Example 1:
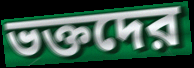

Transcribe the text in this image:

ভক্তদের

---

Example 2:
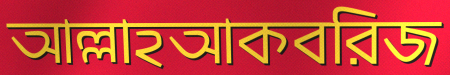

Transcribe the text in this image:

আল্লাহআকবরিজ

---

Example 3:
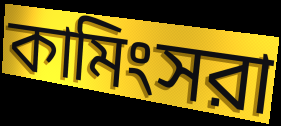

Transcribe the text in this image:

কামিংসরা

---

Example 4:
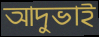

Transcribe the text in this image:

আদুভাই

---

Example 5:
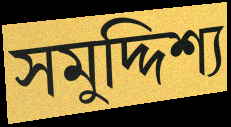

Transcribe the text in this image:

সমুদ্দিশ্য